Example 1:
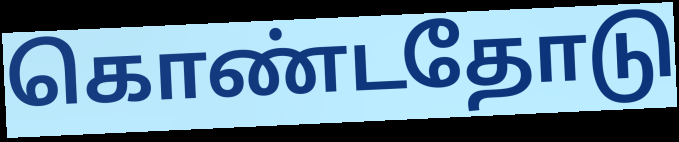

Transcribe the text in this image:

கொண்டதோடு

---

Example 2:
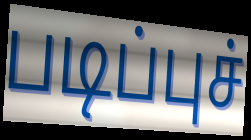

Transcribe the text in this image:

படிப்புச்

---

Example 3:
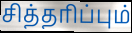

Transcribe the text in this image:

சித்தரிப்பும்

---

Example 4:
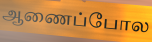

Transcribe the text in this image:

ஆணைப்போல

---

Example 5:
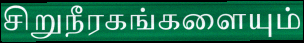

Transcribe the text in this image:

சிறுநீரகங்களையும்